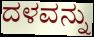
ದಳವನ್ನು